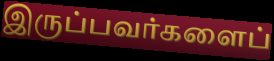
இருப்பவர்களைப்